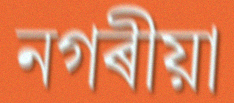
নগৰীয়া